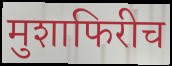
मुशाफिरीच